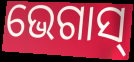
ଭେଗାସ୍